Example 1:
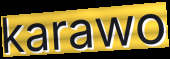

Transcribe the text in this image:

karawo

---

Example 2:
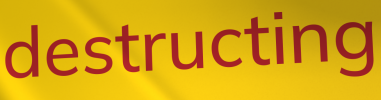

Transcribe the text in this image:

destructing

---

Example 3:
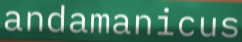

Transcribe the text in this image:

andamanicus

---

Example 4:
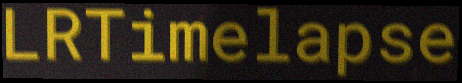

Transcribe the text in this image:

LRTimelapse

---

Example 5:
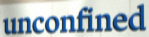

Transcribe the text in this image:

unconfined